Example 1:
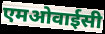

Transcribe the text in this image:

एमओवाईसी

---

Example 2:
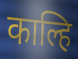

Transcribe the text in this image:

काल्हि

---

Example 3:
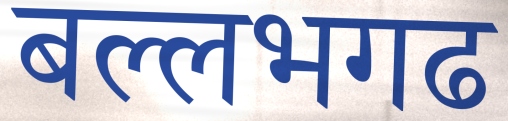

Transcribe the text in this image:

बल्लभगढ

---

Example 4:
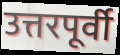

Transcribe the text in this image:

उत्तरपूर्वी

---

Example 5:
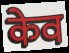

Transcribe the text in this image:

केव